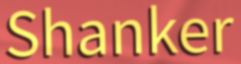
Shanker